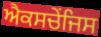
ਐਕਸਚੇਂਜਿਸ